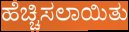
ಹೆಚ್ಚಿಸಲಾಯಿತು